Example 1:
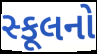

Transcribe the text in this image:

સ્કૂલનો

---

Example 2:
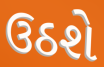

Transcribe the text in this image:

ઉઠશે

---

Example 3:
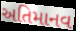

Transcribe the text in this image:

અતિમાનવ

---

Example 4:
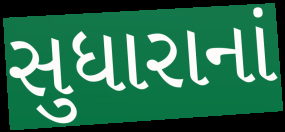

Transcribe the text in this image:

સુધારાનાં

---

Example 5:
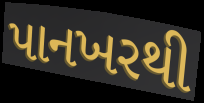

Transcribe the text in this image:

પાનખરથી